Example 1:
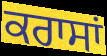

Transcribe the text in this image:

ਕਰਾਸਾਂ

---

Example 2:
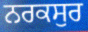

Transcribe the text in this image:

ਨਰਕਸੁਰ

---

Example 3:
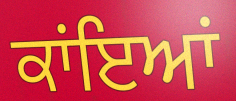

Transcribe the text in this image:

ਕਾਂਇਆਂ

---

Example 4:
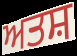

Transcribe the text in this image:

ਅਤਸ਼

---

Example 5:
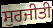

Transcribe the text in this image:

ਸੁਰਜੀਤੀ